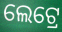
ଲେଟ୍ରେ